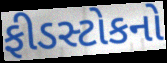
ફીડસ્ટોકનો